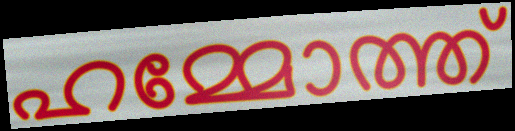
ഹമ്മോത്ത്